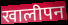
खालीपन